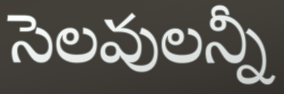
సెలవులన్నీ